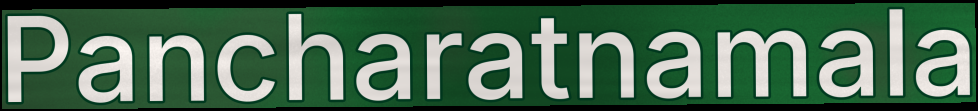
Pancharatnamala